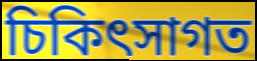
চিকিৎসাগত